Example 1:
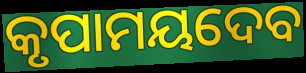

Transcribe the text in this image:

କୃପାମୟଦେବ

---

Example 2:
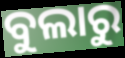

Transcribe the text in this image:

ବୁଲାରୁ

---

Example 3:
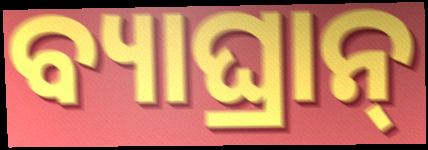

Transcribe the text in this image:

ବ୍ୟାଘ୍ରାନ୍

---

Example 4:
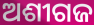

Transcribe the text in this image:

ଅଶୀଗଜ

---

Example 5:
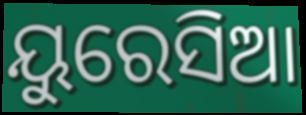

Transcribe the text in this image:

ୟୁରେସିଆ